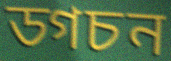
ডগচন